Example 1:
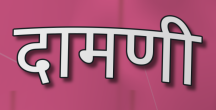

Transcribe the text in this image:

दामणी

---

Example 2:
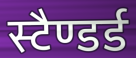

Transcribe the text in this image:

स्टैण्डर्ड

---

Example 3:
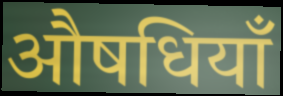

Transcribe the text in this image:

औषधियाँ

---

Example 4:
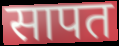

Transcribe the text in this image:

सापत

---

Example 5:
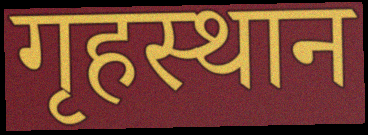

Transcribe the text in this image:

गृहस्थान